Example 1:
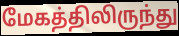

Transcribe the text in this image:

மேகத்திலிருந்து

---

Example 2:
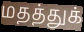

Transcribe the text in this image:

மதத்துக்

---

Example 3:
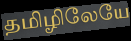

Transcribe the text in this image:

தமிழிலேயே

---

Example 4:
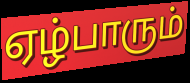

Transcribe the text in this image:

ஏழ்பாரும்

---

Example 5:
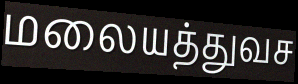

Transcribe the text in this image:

மலையத்துவச